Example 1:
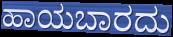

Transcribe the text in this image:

ಹಾಯಬಾರದು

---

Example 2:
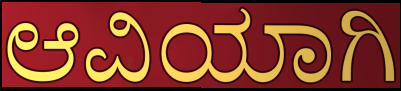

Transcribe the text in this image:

ಆವಿಯಾಗಿ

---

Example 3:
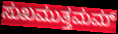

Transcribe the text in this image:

ಸುಖಮುತ್ತಮಮ್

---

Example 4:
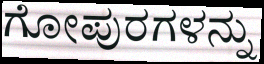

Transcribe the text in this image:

ಗೋಪುರಗಳನ್ನು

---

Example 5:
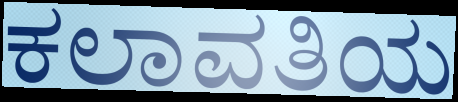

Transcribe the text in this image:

ಕಲಾವತಿಯ